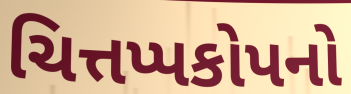
ચિત્તપ્પકોપનો